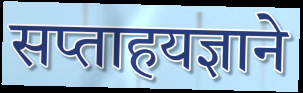
सप्ताहयज्ञाने